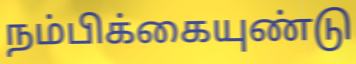
நம்பிக்கையுண்டு